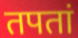
तपतां